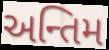
અન્તિમ